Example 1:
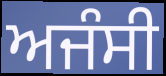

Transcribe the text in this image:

ਅਜੰਸੀ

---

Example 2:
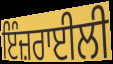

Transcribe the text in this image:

ਇੰਜ਼ਰਾਈਲੀ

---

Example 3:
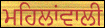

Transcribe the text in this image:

ਮਹਿਲਾਂਵਾਲੀ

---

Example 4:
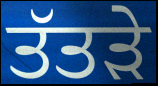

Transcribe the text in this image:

ਤੱਤੜੇ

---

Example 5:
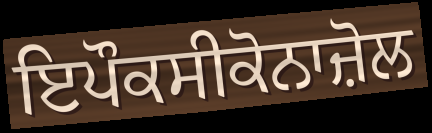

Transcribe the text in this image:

ਇਪੌਕਸੀਕੋਨਾਜ਼ੋਲ